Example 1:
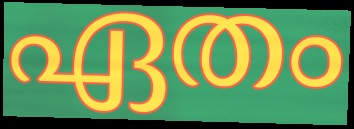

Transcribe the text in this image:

ഏതം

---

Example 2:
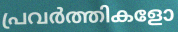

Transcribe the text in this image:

പ്രവർത്തികളോ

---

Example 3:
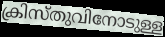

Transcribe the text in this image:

ക്രിസ്തുവിനോടുള്ള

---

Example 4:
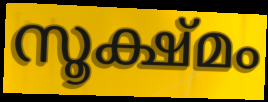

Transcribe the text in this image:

സൂക്ഷ്‌മം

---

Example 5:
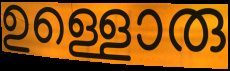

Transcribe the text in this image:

ഉള്ളൊരു